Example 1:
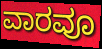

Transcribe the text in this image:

ವಾರವೂ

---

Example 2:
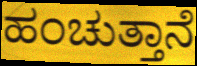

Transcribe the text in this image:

ಹಂಚುತ್ತಾನೆ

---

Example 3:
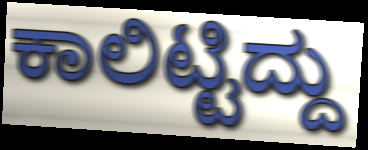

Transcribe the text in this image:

ಕಾಲಿಟ್ಟಿದ್ದು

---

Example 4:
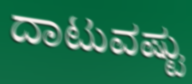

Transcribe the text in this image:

ದಾಟುವಷ್ಟು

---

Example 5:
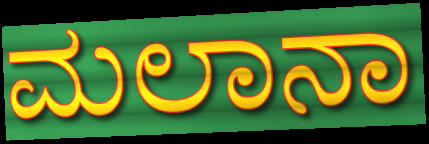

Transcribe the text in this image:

ಮಲಾನಾ